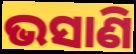
ଭସାଣି